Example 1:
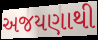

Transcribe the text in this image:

અજયણાથી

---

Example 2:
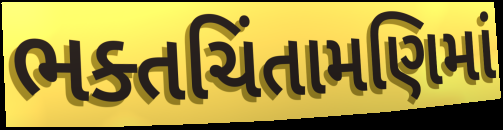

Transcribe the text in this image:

ભક્તચિંતામણિમાં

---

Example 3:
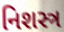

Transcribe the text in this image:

નિશસ્ત્ર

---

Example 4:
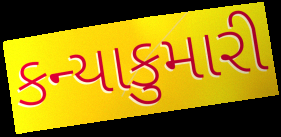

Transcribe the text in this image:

કન્યાકુમારી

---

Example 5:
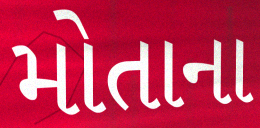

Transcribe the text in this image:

મોતાના